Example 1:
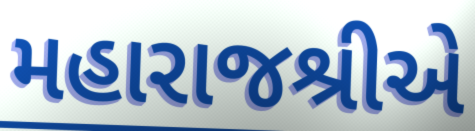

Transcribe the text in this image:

મહારાજશ્રીએ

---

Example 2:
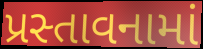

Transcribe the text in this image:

પ્રસ્તાવનામાં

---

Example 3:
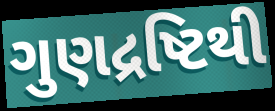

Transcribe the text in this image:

ગુણદ્રષ્ટિથી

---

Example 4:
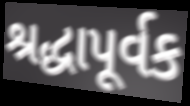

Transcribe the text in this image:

શ્રદ્ધાપૂર્વક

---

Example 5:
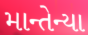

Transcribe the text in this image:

માન્તેન્યા